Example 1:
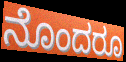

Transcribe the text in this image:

ನೊಂದರೂ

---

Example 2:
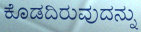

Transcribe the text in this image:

ಕೊಡದಿರುವುದನ್ನು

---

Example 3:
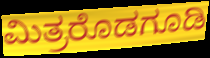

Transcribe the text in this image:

ಮಿತ್ರರೊಡಗೂಡಿ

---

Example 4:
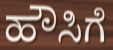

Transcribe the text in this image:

ಹೌಸಿಗೆ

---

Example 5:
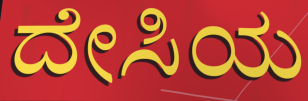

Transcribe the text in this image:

ದೇಸಿಯ